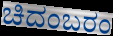
ಚಿದಂಬರಂ